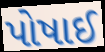
પોષાઈ